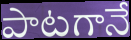
పాటగానే